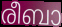
രീബാ